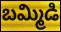
బమ్మిడి